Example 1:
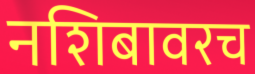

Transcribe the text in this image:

नशिबावरच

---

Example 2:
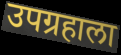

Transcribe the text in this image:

उपग्रहाला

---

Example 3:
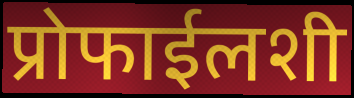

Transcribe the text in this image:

प्रोफाईलशी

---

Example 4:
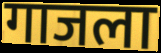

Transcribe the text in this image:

गाजला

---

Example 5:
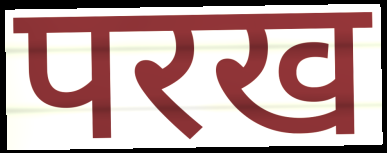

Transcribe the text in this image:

परख